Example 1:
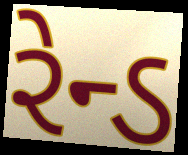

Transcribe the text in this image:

રેન્ડ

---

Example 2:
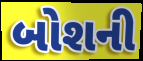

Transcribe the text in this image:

બોશની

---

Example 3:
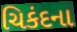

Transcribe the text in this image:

ચિકંદના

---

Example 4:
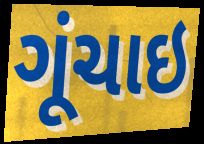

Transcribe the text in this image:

ગૂંચાઇ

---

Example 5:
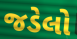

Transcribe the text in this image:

જડેલો